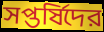
সপ্তর্ষিদের